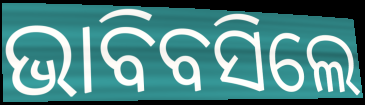
ଭାବିବସିଲେ